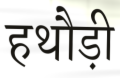
हथौड़ी